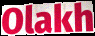
Olakh